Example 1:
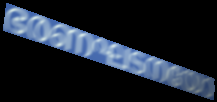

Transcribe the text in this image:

ഭരണഘടനയോ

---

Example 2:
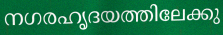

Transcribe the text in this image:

നഗരഹൃദയത്തിലേക്കു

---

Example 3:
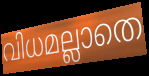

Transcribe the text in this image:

വിധമല്ലാതെ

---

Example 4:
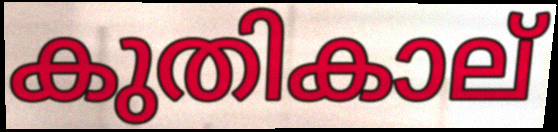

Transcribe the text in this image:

കുതികാല്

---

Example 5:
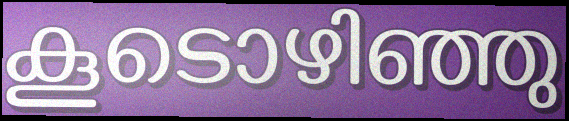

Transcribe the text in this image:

കൂടൊഴിഞ്ഞു